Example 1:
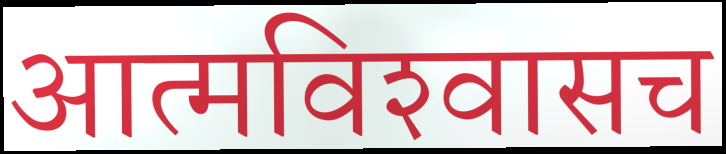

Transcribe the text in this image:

आत्मविश्वासच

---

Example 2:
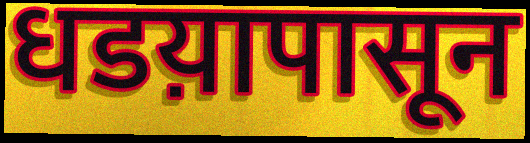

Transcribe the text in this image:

धडय़ापासून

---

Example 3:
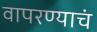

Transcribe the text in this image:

वापरण्याचं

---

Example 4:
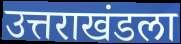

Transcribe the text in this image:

उत्तराखंडला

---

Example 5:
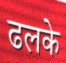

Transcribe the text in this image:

ढलके